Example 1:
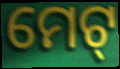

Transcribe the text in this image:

ମେଟ୍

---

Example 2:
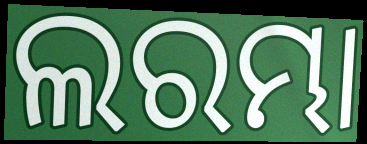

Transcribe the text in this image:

ଲରମ୍ଭା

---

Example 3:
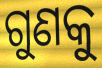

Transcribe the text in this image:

ଗୁଣକୁ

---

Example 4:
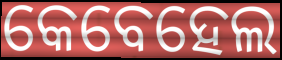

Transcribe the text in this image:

କେବେହେଲ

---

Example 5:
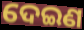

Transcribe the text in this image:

ଦେଇଣ